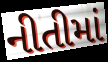
નીતીમાં